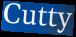
Cutty